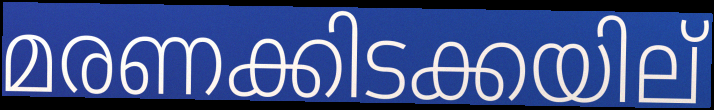
മരണക്കിടക്കയില്